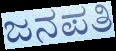
ಜನಪತಿ